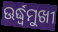
ଊର୍ଦ୍ଧ୍ବମୁଖୀ